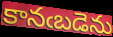
కానఁబడెను